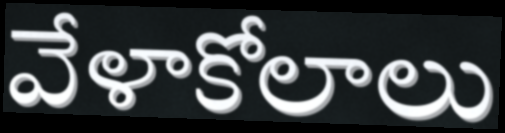
వేళాకోలాలు